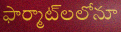
ఫార్మాట్‌లలోనూ